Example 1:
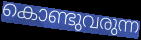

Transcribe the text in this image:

കൊണ്ടുവരുന്ന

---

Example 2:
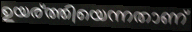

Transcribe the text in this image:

ഉയര്ത്തിയെന്നതാണ്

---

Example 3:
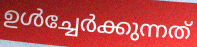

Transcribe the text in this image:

ഉൾച്ചേർക്കുന്നത്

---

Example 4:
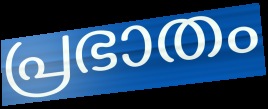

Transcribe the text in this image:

പ്രഭാതം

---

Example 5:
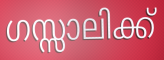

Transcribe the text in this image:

ഗസ്സാലിക്ക്